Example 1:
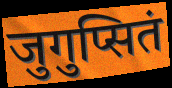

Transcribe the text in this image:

जुगुप्सितं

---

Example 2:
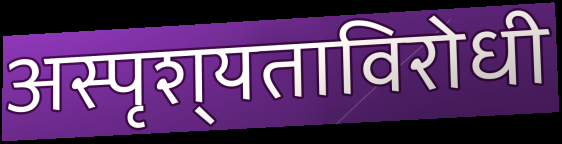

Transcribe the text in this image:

अस्पृश्यताविरोधी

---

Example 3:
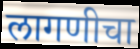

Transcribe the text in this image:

लागणीचा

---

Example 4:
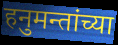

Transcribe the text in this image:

हनुमन्तांच्या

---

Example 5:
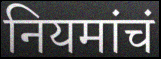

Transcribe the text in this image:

नियमांचं